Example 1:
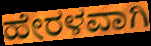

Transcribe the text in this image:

ಹೇರಳವಾಗಿ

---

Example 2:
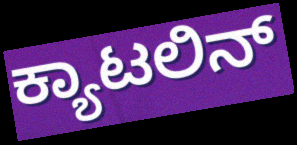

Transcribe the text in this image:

ಕ್ಯಾಟಲಿನ್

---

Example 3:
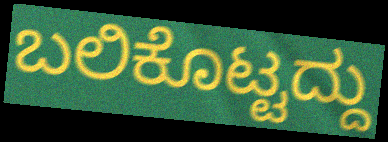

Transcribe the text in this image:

ಬಲಿಕೊಟ್ಟದ್ದು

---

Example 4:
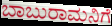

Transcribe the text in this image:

ಬಾಬುರಾಮನಿಗೆ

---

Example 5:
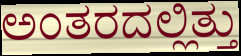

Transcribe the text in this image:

ಅಂತರದಲ್ಲಿತ್ತು